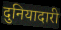
दुनियादारी